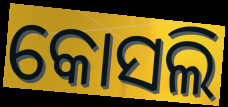
କୋସଲି